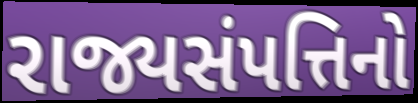
રાજ્યસંપત્તિનો